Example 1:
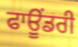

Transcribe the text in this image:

ਫਾਊਂਡਰੀ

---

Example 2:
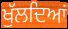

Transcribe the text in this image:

ਖੁੱਲਦਿਆਂ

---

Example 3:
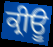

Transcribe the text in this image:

ਕ੍ਰੀਊ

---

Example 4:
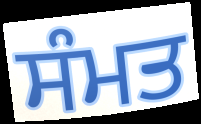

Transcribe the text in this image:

ਸੰਮਤ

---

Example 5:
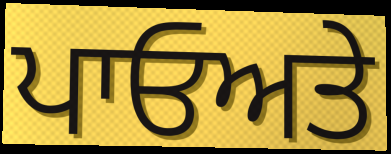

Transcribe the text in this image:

ਪਾਓਅਤੇ